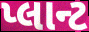
પ્લાન્ટ